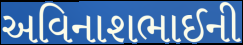
અવિનાશભાઈની